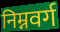
निम्नवर्ग